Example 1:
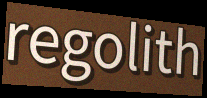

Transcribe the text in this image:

regolith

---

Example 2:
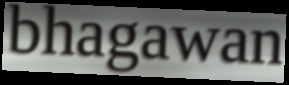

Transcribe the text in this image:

bhagawan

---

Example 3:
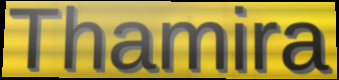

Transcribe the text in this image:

Thamira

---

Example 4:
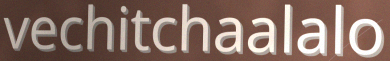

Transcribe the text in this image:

vechitchaalalo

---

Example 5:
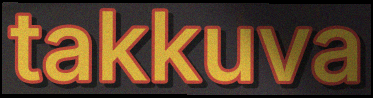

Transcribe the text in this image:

takkuva